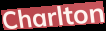
Charlton